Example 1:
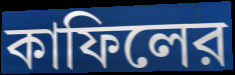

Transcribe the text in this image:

কাফিলের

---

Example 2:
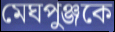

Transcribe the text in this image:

মেঘপুঞ্জকে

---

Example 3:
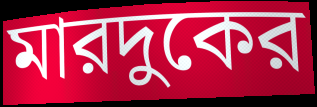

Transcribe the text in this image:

মারদুকের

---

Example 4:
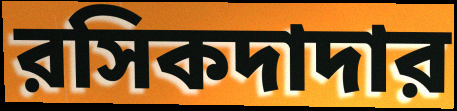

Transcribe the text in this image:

রসিকদাদার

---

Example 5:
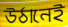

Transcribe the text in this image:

উঠানেই